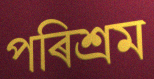
পৰিশ্ৰম